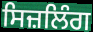
ਸਿਜ਼ਲਿੰਗ